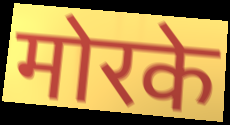
मोरके